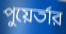
পুয়ের্তার